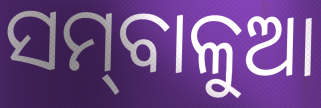
ସମ୍‌ବାଳୁଆ